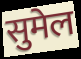
सुमेल